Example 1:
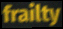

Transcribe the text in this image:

frailty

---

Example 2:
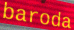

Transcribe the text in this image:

baroda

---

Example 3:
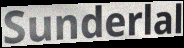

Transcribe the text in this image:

Sunderlal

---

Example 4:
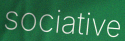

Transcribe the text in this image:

sociative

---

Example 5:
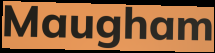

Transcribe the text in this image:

Maugham